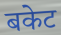
बकेट